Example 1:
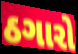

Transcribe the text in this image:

ઠગારો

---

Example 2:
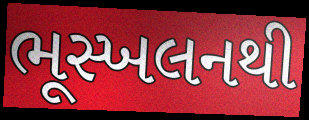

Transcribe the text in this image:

ભૂસ્ખલનથી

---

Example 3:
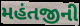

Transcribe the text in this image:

મહંતજીની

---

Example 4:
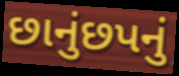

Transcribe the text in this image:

છાનુંછપનું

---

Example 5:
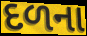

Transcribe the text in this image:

દળના